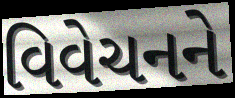
વિવેચનને